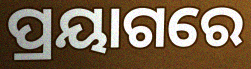
ପ୍ରୟାଗରେ